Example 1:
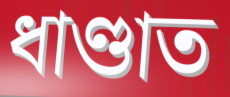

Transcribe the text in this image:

ধাণ্ডাত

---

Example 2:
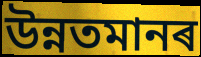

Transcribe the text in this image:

উন্নতমানৰ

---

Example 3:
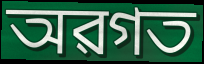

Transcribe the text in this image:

অৱগত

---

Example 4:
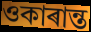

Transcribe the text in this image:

ওকাৰান্ত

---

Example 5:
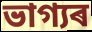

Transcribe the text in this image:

ভাগ্যৰ